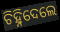
ଚିହ୍ନିଦେଲେ